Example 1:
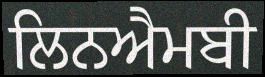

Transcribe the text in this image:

ਲਿਨਐਮਬੀ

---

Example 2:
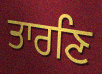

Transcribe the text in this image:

ਤਾਰਣਿ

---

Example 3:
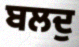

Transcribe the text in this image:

ਬਲਦੁ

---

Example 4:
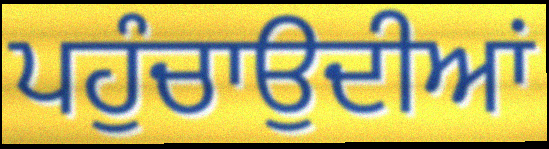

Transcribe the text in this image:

ਪਹੁੰਚਾਉਦੀਆਂ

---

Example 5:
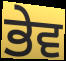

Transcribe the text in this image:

ਭੇਵ